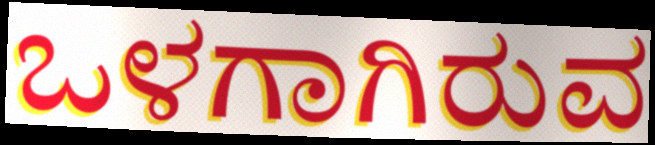
ಒಳಗಾಗಿರುವ